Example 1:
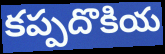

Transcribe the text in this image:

కప్పదొకియ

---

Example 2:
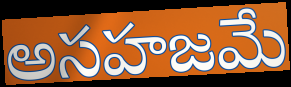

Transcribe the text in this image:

అసహజమే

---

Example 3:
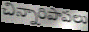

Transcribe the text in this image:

చిన్నారిపాపలు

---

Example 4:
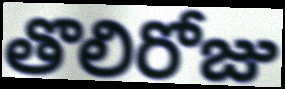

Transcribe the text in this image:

తొలిరోజు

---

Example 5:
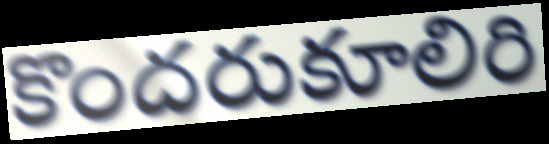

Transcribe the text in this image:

కొందరుకూలిరి